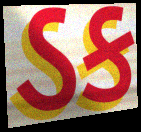
ડક